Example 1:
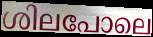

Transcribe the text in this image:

ശിലപോലെ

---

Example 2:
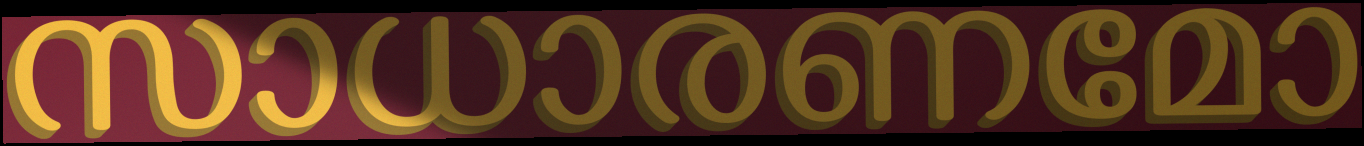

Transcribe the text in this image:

സാധാരണമോ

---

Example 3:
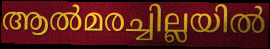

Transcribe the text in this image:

ആൽമരച്ചില്ലയിൽ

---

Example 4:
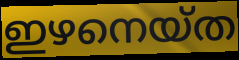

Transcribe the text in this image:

ഇഴനെയ്ത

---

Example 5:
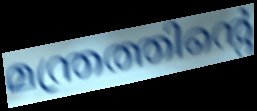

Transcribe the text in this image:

മന്ത്രത്തിന്റെ